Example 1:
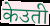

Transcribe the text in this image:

केउती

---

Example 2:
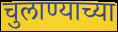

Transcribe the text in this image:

चुलाण्याच्या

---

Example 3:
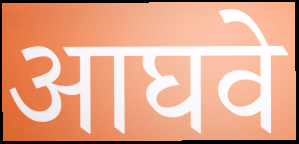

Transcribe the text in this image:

आघवे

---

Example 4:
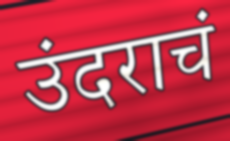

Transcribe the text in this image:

उंदराचं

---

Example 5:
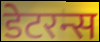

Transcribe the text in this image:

डेटरन्स